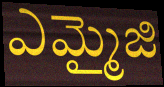
ఎమ్మైజి